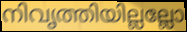
നിവൃത്തിയില്ലല്ലോ